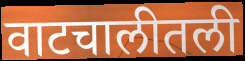
वाटचालीतली